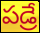
పడ్రే